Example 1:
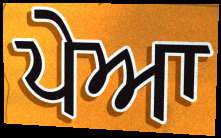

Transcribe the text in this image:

ਪੇਆ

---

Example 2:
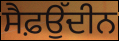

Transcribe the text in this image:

ਸੈਫ਼ਉੱਦੀਨ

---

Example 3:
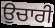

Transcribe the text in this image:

ਉਚਾਰੀ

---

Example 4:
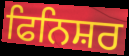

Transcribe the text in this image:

ਫਿਨਿਸ਼ਰ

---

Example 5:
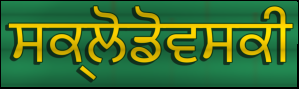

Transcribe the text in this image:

ਸਕ੍ਲੋਡੋਵਸਕੀ